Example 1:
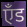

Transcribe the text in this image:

एँड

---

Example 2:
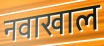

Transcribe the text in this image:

नवाखाल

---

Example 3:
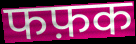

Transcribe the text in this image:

फफ़क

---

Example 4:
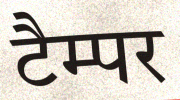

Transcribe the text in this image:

टैम्पर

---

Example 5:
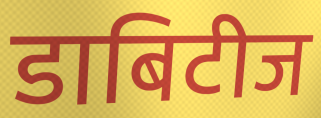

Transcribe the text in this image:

डाबिटीज